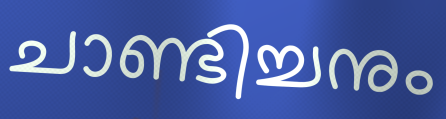
ചാണ്ടിച്ചനും